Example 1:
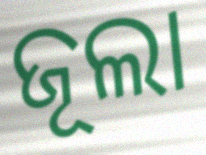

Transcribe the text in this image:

ଜୂଲା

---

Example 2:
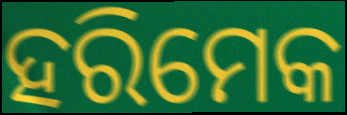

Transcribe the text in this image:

ହରିମେକ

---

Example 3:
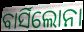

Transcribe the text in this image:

ବାର୍ସିଲୋନା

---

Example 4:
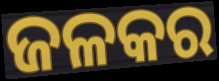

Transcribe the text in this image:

ଜଳକର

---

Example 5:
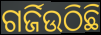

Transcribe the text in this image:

ଗର୍ଜିଉଠିଛି